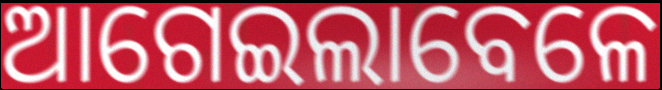
ଆଗେଇଲାବେଳେ